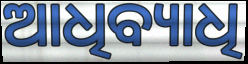
ଆଧିବ୍ୟାଧି